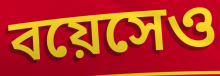
বয়েসেও